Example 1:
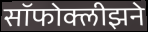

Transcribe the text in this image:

सॉफोक्लीझने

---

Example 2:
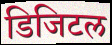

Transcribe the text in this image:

डिजिटल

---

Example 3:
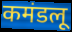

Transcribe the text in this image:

कमंडलू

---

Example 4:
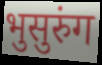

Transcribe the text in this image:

भुसुरुंग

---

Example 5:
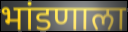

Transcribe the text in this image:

भांडणाला